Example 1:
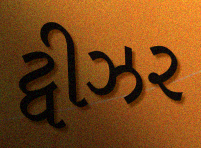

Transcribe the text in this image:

ટ્વીઝર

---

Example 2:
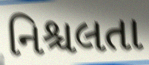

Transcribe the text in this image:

નિશ્ચલતા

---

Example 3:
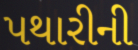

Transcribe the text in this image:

પથારીની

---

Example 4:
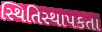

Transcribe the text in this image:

સ્થિતિસ્થાપકતા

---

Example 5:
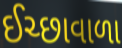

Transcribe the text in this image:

ઈચ્છાવાળા